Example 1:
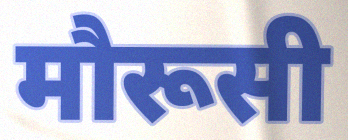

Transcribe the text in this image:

मौरूसी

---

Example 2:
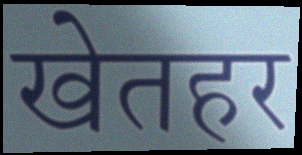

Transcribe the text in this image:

खेतहर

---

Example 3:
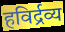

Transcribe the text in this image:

हविर्द्रव्य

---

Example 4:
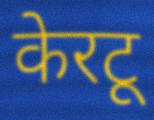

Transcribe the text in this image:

केरटू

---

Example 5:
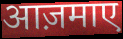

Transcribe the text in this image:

आज़माए